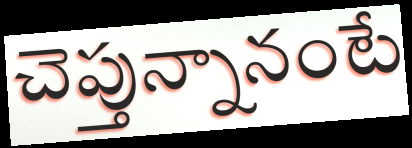
చెప్తున్నానంటే